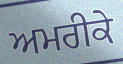
ਅਮਰੀਕੇ